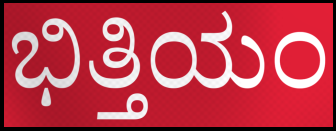
ಭಿತ್ತಿಯಂ